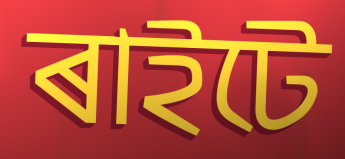
ৰাইটে